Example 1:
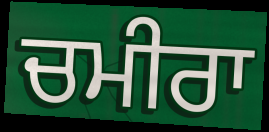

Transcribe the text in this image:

ਚਮੀਰਾ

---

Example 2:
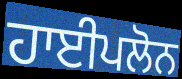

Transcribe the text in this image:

ਹਾਈਪਲੋਨ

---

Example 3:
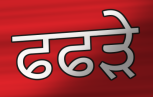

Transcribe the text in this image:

ਫਫੜੇ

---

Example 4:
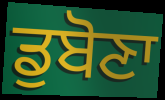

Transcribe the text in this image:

ਡੁਬੋਣਾ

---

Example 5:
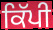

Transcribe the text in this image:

ਕਿੱਪੀ